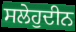
ਸਲੇਹੁਦੀਨ